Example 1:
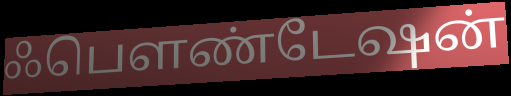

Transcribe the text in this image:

ஃபௌண்டேஷன்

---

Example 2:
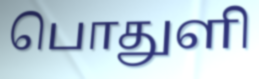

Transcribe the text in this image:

பொதுளி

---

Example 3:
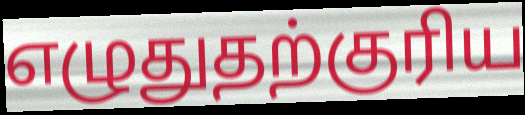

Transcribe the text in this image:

எழுதுதற்குரிய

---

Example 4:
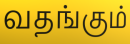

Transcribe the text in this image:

வதங்கும்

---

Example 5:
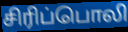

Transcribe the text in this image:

சிரிப்பொலி